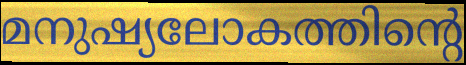
മനുഷ്യലോകത്തിന്റെ